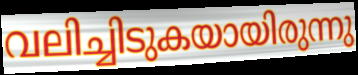
വലിച്ചിടുകയായിരുന്നു